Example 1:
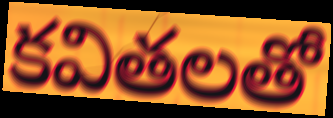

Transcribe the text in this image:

కవితలతో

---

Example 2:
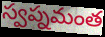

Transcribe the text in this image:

స్వప్నమంత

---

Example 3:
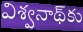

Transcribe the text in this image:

విశ్వనాథ్‌కు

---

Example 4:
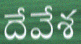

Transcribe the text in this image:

దేవేశ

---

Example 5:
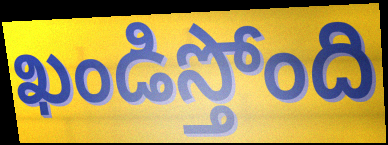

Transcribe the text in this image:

ఖండిస్తోంది